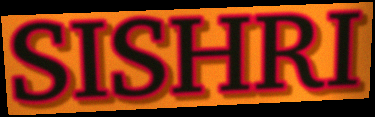
SISHRI